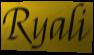
Ryali